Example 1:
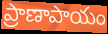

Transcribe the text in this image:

ప్రాణాపాయం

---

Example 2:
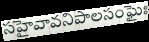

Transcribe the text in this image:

సహైవావనిపాలసంఘైః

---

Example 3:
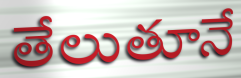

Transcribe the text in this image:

తేలుతూనే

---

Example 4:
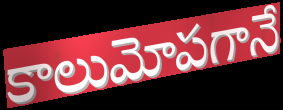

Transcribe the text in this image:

కాలుమోపగానే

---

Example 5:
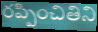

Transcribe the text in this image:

రప్పించితిని